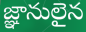
జ్ఞానులైన